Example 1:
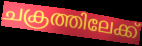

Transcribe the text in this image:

ചക്രത്തിലേക്ക്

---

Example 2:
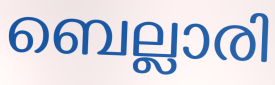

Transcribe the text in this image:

ബെല്ലാരി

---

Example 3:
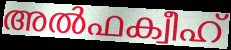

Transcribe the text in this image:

അൽഫക്വീഹ്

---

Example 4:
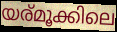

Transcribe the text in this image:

യര്മൂക്കിലെ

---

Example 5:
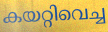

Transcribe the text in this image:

കയറ്റിവെച്ച